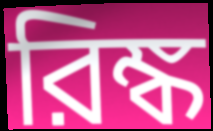
রিঙ্ক